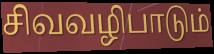
சிவவழிபாடும்